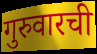
गुरुवारची